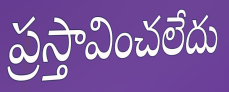
ప్రస్తావించలేదు